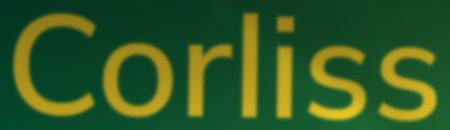
Corliss